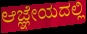
ಆಜ್ಞೇಯದಲ್ಲಿ